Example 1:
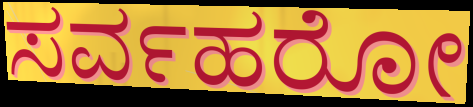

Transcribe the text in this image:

ಸರ್ವಹರೋ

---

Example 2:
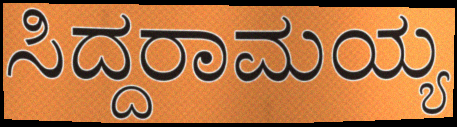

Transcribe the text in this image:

ಸಿದ್ದರಾಮಯ್ಯ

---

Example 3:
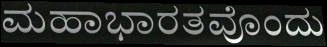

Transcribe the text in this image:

ಮಹಾಭಾರತವೊಂದು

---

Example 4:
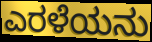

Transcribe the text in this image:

ಎರಳೆಯನು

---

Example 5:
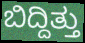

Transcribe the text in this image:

ಬಿದ್ದಿತ್ತು